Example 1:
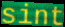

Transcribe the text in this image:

sint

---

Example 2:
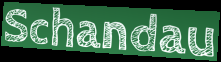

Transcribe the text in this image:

Schandau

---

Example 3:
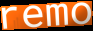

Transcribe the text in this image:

remo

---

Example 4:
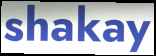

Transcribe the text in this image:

shakay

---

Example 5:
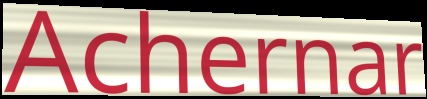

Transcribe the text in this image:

Achernar